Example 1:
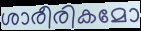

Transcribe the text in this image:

ശാരീരികമോ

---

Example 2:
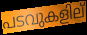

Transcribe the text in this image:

പടവുകളില്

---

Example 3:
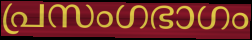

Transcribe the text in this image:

പ്രസംഗഭാഗം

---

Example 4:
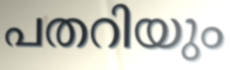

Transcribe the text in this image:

പതറിയും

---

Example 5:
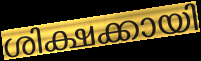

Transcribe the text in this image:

ശിക്ഷക്കായി